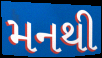
મનથી